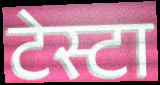
टेस्टा